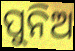
ପୁନିଅ